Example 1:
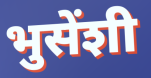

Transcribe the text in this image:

भुसेंशी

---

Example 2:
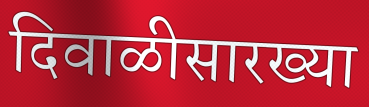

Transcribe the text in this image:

दिवाळीसारख्या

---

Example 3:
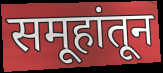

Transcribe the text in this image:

समूहांतून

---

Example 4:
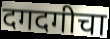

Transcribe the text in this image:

दगदगीचा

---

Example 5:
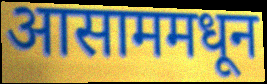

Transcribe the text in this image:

आसाममधून